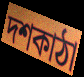
দশকাঠা